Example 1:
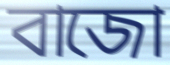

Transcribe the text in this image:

বাজো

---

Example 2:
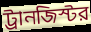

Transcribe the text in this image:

ট্রানজিস্টর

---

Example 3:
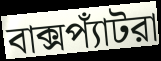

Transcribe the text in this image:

বাক্সপ্যাঁটরা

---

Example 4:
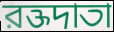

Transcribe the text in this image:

রক্তদাতা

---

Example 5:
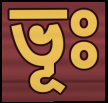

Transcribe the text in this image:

ভূঃ